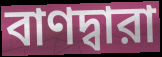
বাণদ্বারা